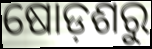
ଷୋଡ଼ଶରୁ